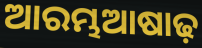
ଆରମ୍ଭଆଷାଢ଼